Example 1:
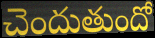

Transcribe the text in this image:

చెందుతుందో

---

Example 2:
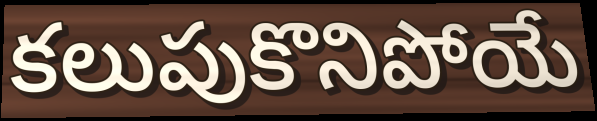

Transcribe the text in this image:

కలుపుకొనిపోయే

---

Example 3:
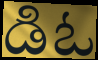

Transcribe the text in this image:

డిఓ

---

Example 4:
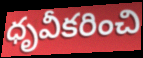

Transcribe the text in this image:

ధృవీకరించి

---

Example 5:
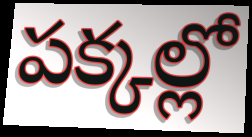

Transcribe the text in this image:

పక్కల్లో